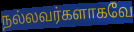
நல்லவர்களாகவே